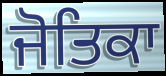
ਜੋਤਿਕਾ